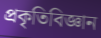
প্রকৃতিবিজ্ঞান